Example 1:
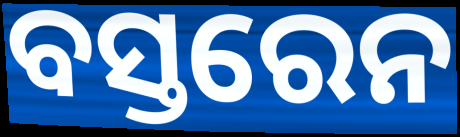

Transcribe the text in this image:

ବସ୍ତରେନ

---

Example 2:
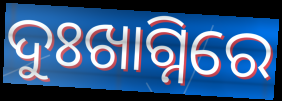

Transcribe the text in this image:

ଦୁଃଖାଗ୍ନିରେ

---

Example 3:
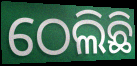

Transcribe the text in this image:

ଠେଲିଛି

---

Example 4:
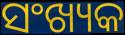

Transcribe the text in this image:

ସଂଖ୍ୟକ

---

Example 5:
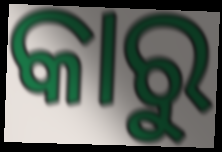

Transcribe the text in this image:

କାରୁ